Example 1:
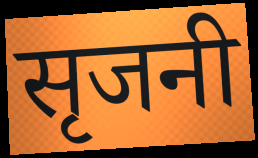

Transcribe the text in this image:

सृजनी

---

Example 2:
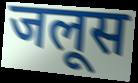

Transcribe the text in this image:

जलूस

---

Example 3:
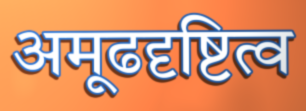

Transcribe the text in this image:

अमूढदृष्टित्व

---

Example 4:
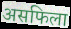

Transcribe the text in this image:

असफिला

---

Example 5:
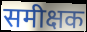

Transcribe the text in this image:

समीक्षक